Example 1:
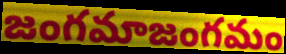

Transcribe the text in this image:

జంగమాజంగమం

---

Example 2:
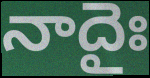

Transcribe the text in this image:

నాదైః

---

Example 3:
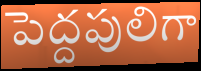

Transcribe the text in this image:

పెద్దపులిగా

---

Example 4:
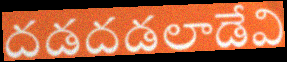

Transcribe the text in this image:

దడదడలాడేవి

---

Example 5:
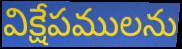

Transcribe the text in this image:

విక్షేపములను